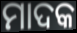
ମାଦକ